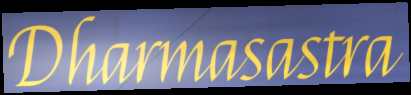
Dharmasastra